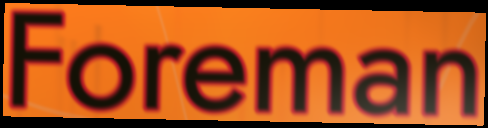
Foreman